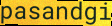
pasandgi